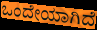
ಒಂದೇಯಾಗಿದೆ